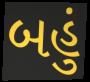
બહું